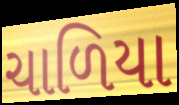
ચાળિયા